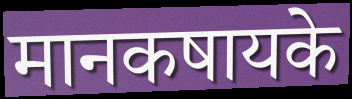
मानकषायके